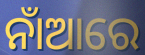
ନାଁଆରେ